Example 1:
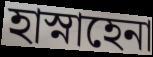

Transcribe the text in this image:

হাস্নাহেনা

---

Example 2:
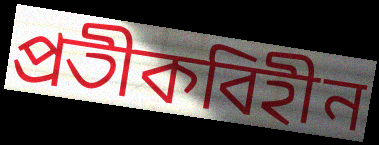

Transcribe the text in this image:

প্রতীকবিহীন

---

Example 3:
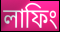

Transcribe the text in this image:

লাফিং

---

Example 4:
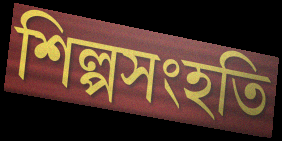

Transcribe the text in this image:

শিল্পসংহতি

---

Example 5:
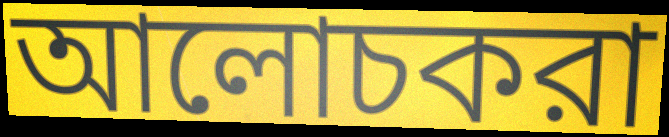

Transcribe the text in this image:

আলোচকরা